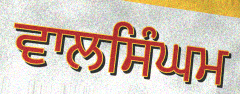
ਵਾਲਸਿੰਘਮ